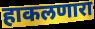
हाकलणारा